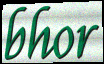
bhor